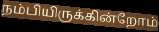
நம்பியிருக்கின்றோம்